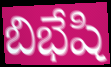
బిభేషి